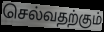
செல்வதற்கும்